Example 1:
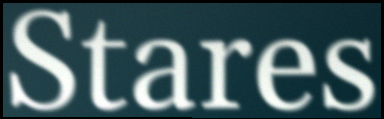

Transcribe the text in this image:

Stares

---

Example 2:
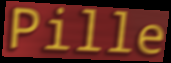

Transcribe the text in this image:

Pille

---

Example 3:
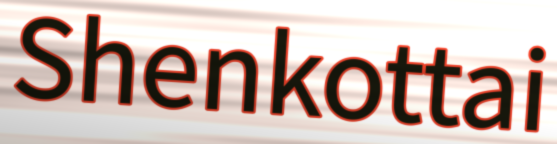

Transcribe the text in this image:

Shenkottai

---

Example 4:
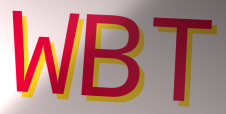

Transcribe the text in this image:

WBT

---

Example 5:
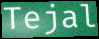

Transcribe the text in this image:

Tejal